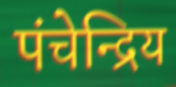
पंचेन्द्रिय